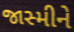
જાસ્મીને